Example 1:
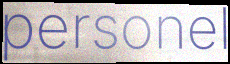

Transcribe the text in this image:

personel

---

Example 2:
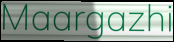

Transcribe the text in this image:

Maargazhi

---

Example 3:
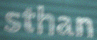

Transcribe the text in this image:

sthan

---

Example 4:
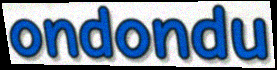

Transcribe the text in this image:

ondondu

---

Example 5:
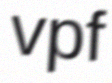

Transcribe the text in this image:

vpf